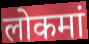
लोकमां